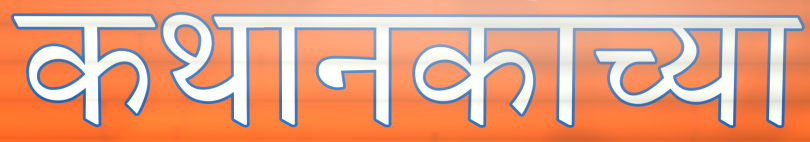
कथानकाच्या